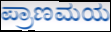
ಪ್ರಾಣಮಯ